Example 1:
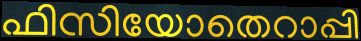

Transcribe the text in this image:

ഫിസിയോതെറാപ്പി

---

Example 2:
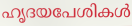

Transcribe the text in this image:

ഹൃദയപേശികൾ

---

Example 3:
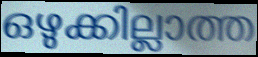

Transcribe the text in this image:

ഒഴുക്കില്ലാത്ത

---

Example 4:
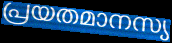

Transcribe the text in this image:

പ്രയതമാനസ്യ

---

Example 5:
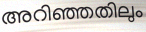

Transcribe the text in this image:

അറിഞ്ഞതിലും